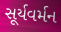
સૂર્યવર્મન